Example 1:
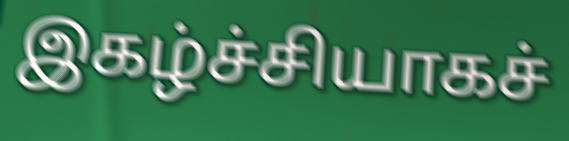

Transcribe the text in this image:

இகழ்ச்சியாகச்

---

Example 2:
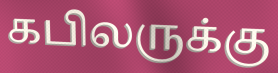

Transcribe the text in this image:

கபிலருக்கு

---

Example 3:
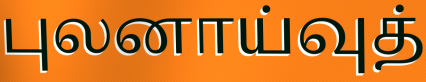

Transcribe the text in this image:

புலனாய்வுத்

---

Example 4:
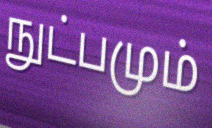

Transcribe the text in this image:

நுட்பமும்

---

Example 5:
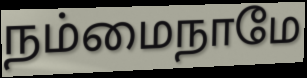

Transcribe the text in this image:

நம்மைநாமே